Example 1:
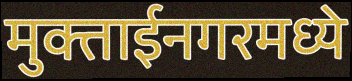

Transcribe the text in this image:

मुक्ताईनगरमध्ये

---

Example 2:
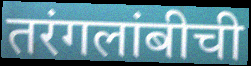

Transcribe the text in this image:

तरंगलांबीची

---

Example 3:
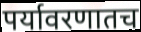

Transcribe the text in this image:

पर्यावरणातच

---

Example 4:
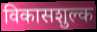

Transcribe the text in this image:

विकासशुल्क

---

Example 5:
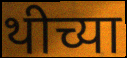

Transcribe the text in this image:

थीच्या